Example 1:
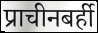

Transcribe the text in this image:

प्राचीनबर्ही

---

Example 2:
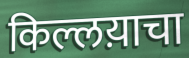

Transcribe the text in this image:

किल्लय़ाचा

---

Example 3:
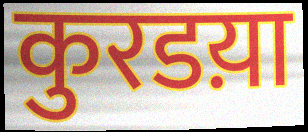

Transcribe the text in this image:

कुरडय़ा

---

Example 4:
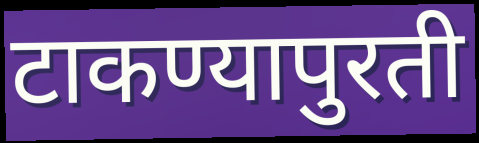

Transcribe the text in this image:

टाकण्यापुरती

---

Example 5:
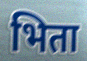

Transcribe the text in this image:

भिता